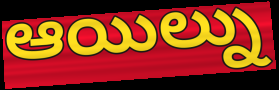
ఆయిల్ను